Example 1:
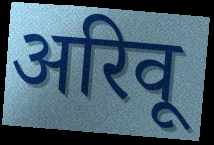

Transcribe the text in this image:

अरिवू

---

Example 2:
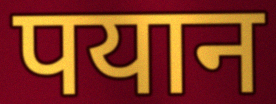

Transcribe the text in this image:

पयान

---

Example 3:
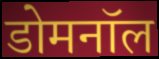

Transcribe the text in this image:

डोमनॉल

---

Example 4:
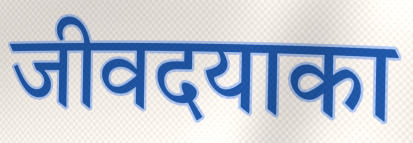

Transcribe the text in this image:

जीवदयाका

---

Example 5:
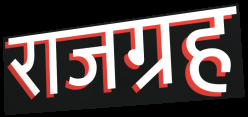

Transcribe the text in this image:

राजग्रह